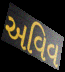
અવિવ